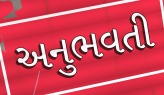
અનુભવતી